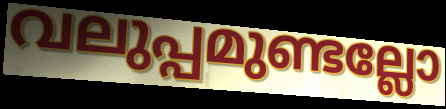
വലുപ്പമുണ്ടല്ലോ